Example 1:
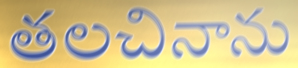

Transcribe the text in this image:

తలచినాను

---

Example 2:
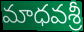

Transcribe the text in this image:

మాధవశ్రీ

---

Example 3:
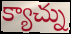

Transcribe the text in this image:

క్యాచ్ను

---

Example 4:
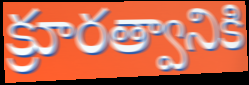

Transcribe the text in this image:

క్రూరత్వానికి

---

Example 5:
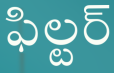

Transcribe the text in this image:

ఫిల్టర్